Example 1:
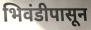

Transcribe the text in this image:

भिवंडीपासून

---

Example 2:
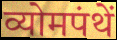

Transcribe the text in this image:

व्योमपंथें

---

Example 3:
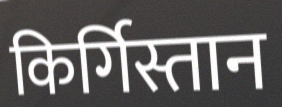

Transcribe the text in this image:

किर्गिस्तान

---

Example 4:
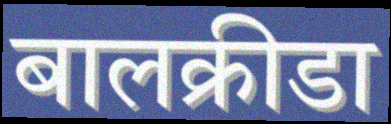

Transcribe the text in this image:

बालक्रीडा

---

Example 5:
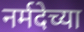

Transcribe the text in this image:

नर्मदेच्या